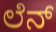
ಲೆನ್